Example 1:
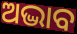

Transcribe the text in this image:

ଅଦ୍ଭାବ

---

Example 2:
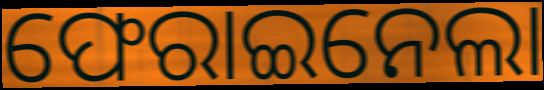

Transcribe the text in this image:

ଫେରାଇନେଲା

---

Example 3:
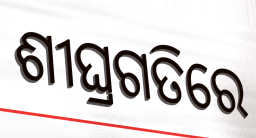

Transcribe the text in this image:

ଶୀଘ୍ରଗତିରେ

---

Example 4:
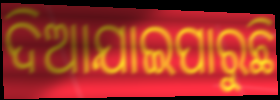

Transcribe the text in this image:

ଦିଆଯାଇପାରୁଛି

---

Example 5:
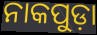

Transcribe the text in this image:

ନାକପୁଡ଼ା